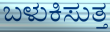
ಬಳುಕಿಸುತ್ತ